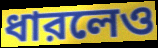
ধারলেও